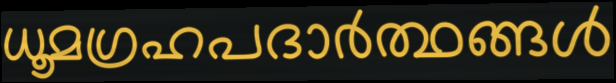
ധൂമഗ്രഹപദാർത്ഥങ്ങൾ